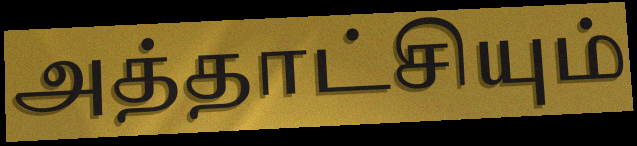
அத்தாட்சியும்